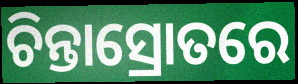
ଚିନ୍ତାସ୍ରୋତରେ